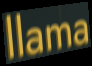
llama